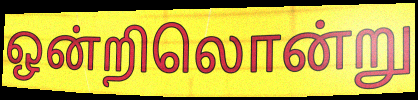
ஒன்றிலொன்று